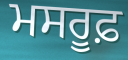
ਮਸਰੂਫ਼